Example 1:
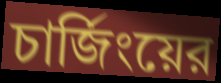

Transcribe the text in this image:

চার্জিংয়ের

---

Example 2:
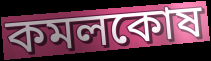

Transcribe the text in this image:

কমলকোষ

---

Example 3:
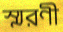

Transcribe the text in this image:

স্মরণী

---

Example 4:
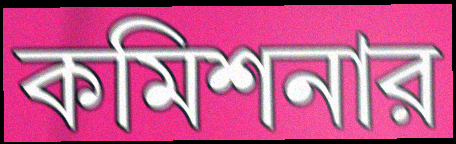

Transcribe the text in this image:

কমিশনার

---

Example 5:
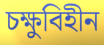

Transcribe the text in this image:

চক্ষুবিহীন